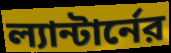
ল্যান্টার্নের